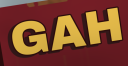
GAH